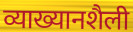
व्याख्यानशैली